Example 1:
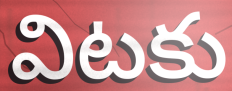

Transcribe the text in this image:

విటకు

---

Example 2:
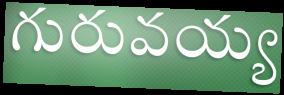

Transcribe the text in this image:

గురువయ్య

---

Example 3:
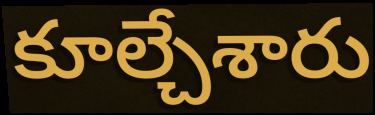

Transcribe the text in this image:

కూల్చేశారు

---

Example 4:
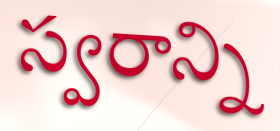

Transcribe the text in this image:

స్వరాన్ని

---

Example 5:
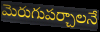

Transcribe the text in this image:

మెరుగుపర్చాలనే